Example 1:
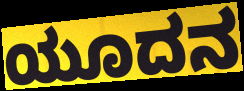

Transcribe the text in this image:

ಯೂದನ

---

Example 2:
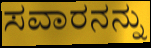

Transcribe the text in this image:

ಸವಾರನನ್ನು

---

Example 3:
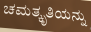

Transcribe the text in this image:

ಚಮತ್ಕೃತಿಯನ್ನು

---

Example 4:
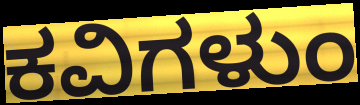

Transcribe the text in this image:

ಕವಿಗಳುಂ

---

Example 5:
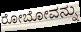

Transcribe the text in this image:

ರೋಬೋವನ್ನು